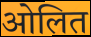
ओलित